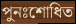
পুনঃশোধিত